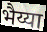
भैय्या